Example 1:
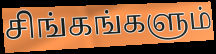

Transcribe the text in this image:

சிங்கங்களும்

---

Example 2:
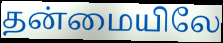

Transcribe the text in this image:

தன்மையிலே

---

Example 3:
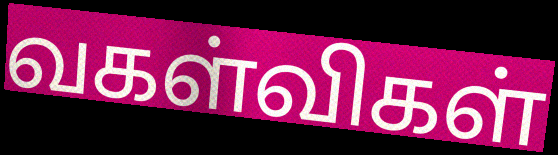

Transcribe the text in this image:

வகள்விகள்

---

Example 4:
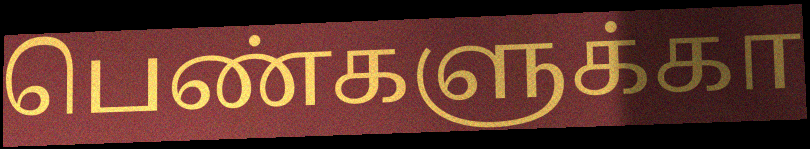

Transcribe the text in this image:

பெண்களுக்கா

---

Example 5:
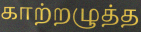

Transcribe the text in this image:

காற்றழுத்த